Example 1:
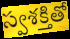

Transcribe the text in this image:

స్వశక్తితో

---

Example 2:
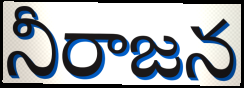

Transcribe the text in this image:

నీరాజన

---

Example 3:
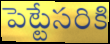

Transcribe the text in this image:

పెట్టేసరికి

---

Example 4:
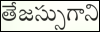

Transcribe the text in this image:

తేజస్సుగాని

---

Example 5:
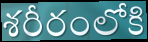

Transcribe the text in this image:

శరీరంలోకి